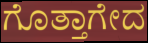
ಗೊತ್ತಾಗೇದ